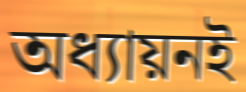
অধ্যায়নই